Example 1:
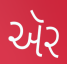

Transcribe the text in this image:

ઍર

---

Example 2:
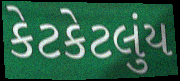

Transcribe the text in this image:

કેટકેટલુંય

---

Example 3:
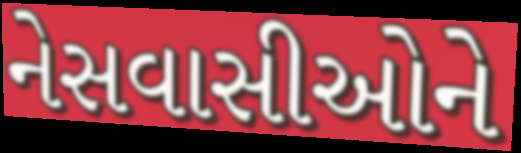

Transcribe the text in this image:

નેસવાસીઓને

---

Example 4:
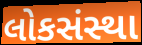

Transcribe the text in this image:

લોકસંસ્થા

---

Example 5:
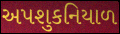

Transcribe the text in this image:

અપશુકનિયાળ